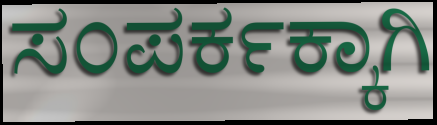
ಸಂಪರ್ಕಕ್ಕಾಗಿ